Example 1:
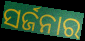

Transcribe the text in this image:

ସର୍ଜନାର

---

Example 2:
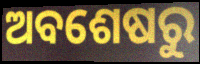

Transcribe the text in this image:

ଅବଶେଷରୁ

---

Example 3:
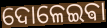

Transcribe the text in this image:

ଦୋଳେଇଵା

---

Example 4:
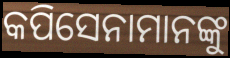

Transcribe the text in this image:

କପିସେନାମାନଙ୍କୁ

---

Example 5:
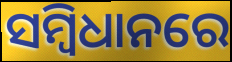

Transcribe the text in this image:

ସମ୍ବିଧାନରେ